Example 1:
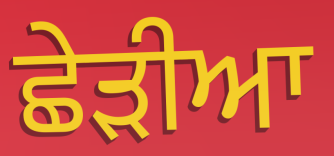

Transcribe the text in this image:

ਛੇੜੀਆ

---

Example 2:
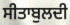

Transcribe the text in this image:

ਸੀਤਾਬੁਲਦੀ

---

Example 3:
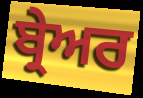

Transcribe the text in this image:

ਬ੍ਰੇਅਰ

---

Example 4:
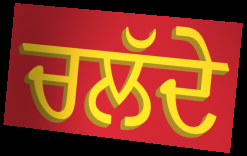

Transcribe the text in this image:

ਚਲੱਦੇ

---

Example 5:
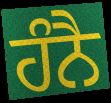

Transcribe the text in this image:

ਹੰਨੈ